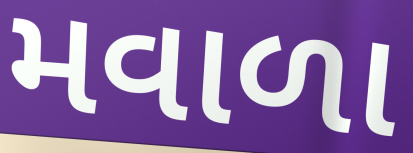
મવાળા